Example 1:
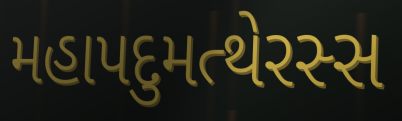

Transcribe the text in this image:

મહાપદુમત્થેરસ્સ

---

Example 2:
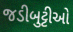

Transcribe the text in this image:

જડીબુટ્ટીઓ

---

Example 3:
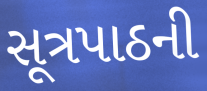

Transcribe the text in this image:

સૂત્રપાઠની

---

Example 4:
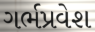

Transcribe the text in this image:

ગર્ભપ્રવેશ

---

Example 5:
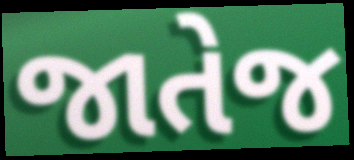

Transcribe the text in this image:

જાતેજ